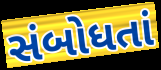
સંબોધતાં